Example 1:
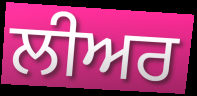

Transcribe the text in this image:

ਲੀਅਰ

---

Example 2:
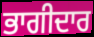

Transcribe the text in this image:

ਭਾਗੀਦਾਰ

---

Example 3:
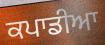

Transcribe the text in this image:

ਕਪਾਡੀਆ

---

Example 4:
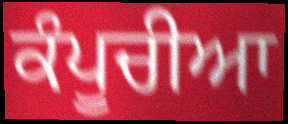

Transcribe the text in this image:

ਕੰਪੂਚੀਆ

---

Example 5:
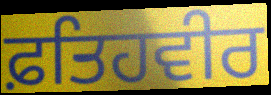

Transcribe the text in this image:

ਫ਼ਤਿਹਵੀਰ